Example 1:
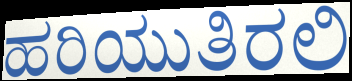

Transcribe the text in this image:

ಹರಿಯುತಿರಲಿ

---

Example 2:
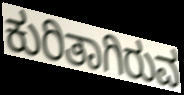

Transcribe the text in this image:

ಕುರಿತಾಗಿರುವ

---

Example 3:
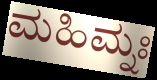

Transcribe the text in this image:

ಮಹಿಮ್ನಃ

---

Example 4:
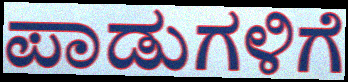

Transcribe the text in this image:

ಪಾಡುಗಳಿಗೆ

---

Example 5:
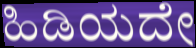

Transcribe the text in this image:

ಹಿಡಿಯದೇ